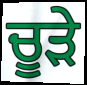
ਚੂੜੇ